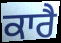
ਕਾਰੈ